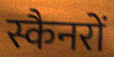
स्कैनरों